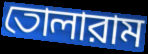
তোলারাম